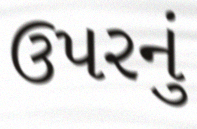
ઉપરનું